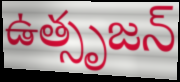
ఉత్సృజన్